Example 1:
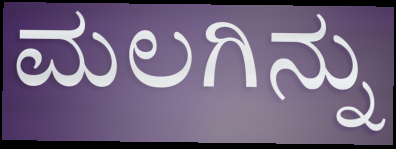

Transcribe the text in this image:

ಮಲಗಿನ್ನು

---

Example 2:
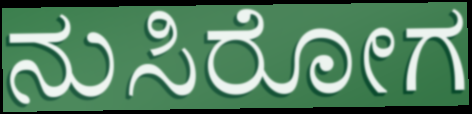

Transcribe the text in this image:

ನುಸಿರೋಗ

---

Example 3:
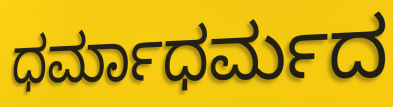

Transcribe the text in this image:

ಧರ್ಮಾಧರ್ಮದ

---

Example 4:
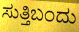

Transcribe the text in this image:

ಸುತ್ತಿಬಂದು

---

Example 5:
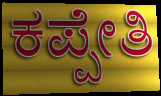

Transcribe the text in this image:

ಕಪ್ಪೇತಿ